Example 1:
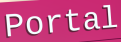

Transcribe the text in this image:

Portal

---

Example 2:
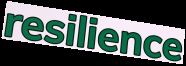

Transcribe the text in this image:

resilience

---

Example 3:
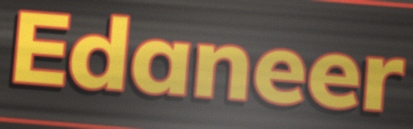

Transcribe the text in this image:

Edaneer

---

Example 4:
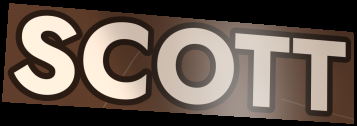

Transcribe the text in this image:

SCOTT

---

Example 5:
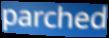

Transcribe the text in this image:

parched